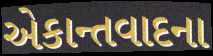
એકાન્તવાદના